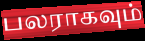
பலராகவும்